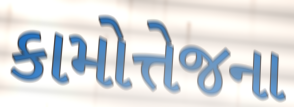
કામોત્તેજના